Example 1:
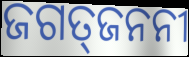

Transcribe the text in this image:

ଜଗତ୍‍ଜନନୀ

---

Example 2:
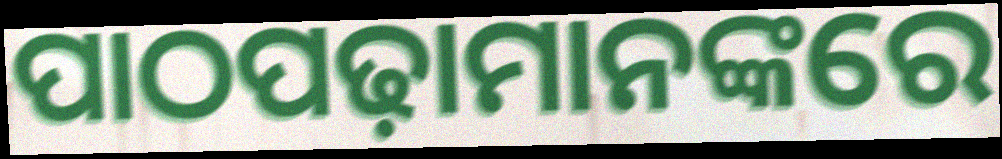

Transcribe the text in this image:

ପାଠପଢ଼ାମାନଙ୍କରେ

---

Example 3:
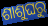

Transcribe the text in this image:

ଶାଶୁଘରୁ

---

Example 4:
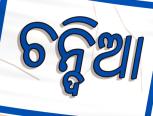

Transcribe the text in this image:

ଚନ୍ଦିଆ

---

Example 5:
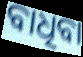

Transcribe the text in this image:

ବାଧିବା